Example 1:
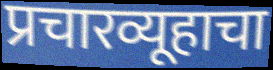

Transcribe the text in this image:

प्रचारव्यूहाचा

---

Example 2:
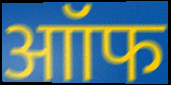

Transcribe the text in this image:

आॉफ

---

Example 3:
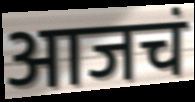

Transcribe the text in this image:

आजचं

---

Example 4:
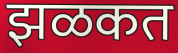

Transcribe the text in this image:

झळकत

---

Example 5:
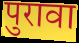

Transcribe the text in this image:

पुरावा